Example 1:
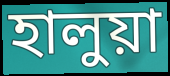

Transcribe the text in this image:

হালুয়া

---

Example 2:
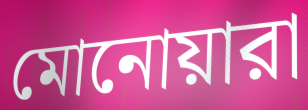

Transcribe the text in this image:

মোনোয়ারা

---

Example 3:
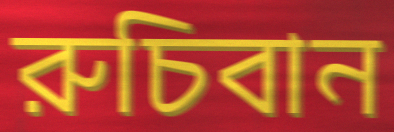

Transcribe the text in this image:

রুচিবান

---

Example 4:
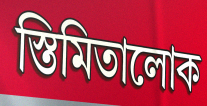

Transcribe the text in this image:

স্তিমিতালোক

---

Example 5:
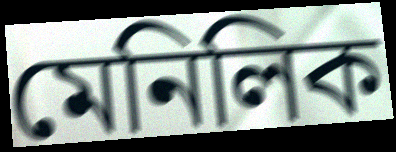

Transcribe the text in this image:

মেনিলিক